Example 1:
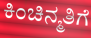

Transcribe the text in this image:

ಕಿಂಚಿನ್ಮತಿಗೆ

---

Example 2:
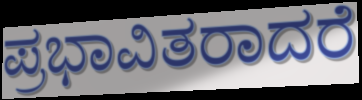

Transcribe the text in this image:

ಪ್ರಭಾವಿತರಾದರೆ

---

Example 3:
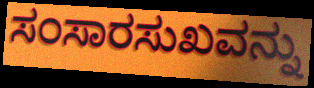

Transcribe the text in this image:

ಸಂಸಾರಸುಖವನ್ನು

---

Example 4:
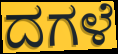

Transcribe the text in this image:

ದಗಳೆ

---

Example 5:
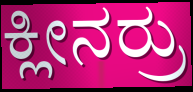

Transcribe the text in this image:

ಕ್ಲೀನರ್ರು